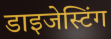
डाइजेस्टिंग